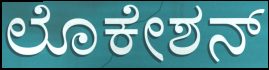
ಲೊಕೇಶನ್